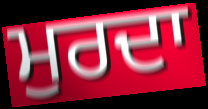
ਮੁਰਦਾ